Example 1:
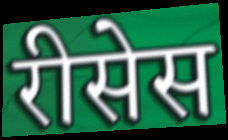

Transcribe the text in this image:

रीसेस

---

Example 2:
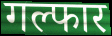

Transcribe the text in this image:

गल्फार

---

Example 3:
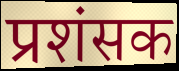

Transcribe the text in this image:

प्रशंसक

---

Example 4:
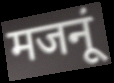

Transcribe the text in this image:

मजनूं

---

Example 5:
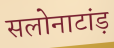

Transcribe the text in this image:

सलोनाटांड़